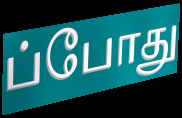
ப்போது